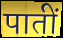
पातीं